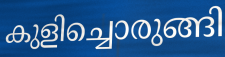
കുളിച്ചൊരുങ്ങി